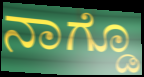
ನಾಗ್ಡೊ